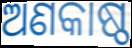
ଅଣକାଷ୍ଠ